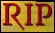
RIP